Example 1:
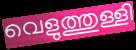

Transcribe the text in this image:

വെളുത്തുള്ളി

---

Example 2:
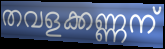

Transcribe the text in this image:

തവളക്കണ്ണന്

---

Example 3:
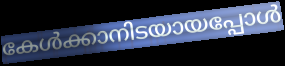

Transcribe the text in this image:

കേൾക്കാനിടയായപ്പോൾ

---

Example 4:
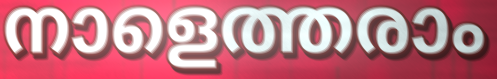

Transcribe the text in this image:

നാളെത്തരാം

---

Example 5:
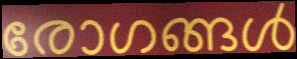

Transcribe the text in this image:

രോഗങ്ങൾ